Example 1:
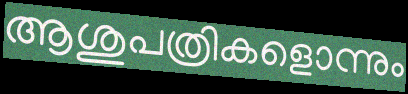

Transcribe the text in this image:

ആശുപത്രികളൊന്നും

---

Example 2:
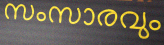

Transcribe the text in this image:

സംസാരവും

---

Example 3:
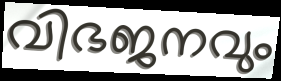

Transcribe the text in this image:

വിഭജനവും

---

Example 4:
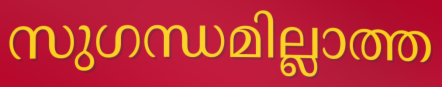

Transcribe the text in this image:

സുഗന്ധമില്ലാത്ത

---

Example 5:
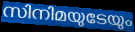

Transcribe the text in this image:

സിനിമയുടേയും